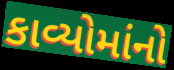
કાવ્યોમાંનો